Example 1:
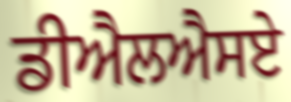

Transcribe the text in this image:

ਡੀਐਲਐਸਏ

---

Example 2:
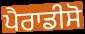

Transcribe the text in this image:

ਪੈਰਾਡੀਸੋ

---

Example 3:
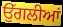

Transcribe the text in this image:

ਉੱਗਲੀਆਂ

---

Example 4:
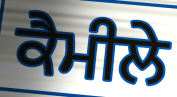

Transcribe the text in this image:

ਕੈਮੀਲੇ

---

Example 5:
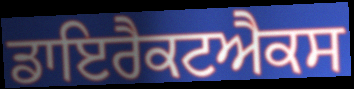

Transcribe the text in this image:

ਡਾਇਰੈਕਟਐਕਸ